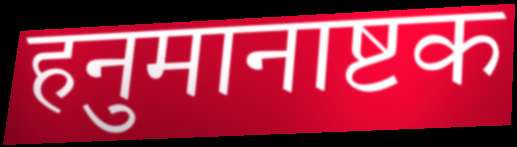
हनुमानाष्टक